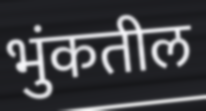
भुंकतील